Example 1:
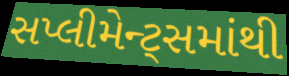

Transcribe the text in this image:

સપ્લીમેન્ટ્સમાંથી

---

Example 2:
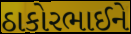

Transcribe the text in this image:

ઠાકોરભાઈને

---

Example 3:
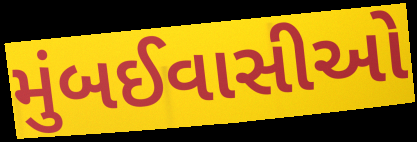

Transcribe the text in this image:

મુંબઈવાસીઓ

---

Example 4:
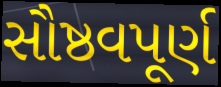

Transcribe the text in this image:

સૌષ્ઠવપૂર્ણ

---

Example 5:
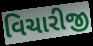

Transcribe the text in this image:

વિચારીજી